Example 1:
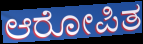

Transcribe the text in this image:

ಆರೋಪಿತ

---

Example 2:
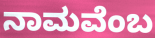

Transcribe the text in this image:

ನಾಮವೆಂಬ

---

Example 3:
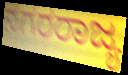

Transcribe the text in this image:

ನಗರರಾಜ್ಯ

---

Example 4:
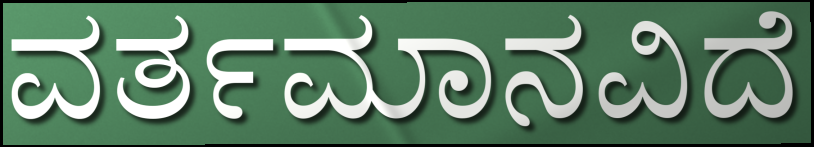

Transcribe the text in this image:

ವರ್ತಮಾನವಿದೆ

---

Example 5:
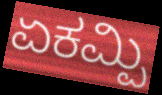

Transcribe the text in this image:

ಏಕಮ್ಪಿ